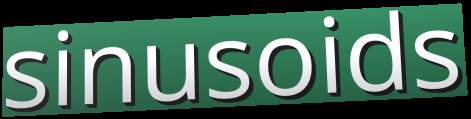
sinusoids